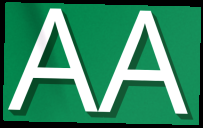
AA